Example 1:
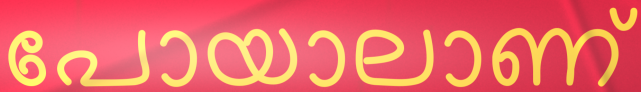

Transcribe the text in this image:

പോയാലാണ്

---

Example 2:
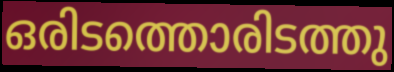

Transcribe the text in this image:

ഒരിടത്തൊരിടത്തു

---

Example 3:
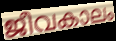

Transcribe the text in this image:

ജീവകാലം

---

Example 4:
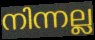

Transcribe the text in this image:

നിന്നല്ല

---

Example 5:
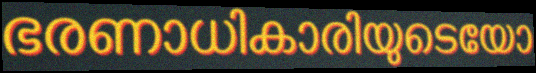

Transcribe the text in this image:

ഭരണാധികാരിയുടെയോ